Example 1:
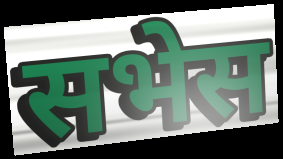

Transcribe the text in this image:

सभेस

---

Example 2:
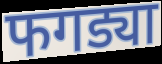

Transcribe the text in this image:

फगड्या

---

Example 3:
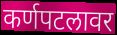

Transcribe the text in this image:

कर्णपटलावर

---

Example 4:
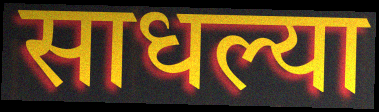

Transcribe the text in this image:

साधल्या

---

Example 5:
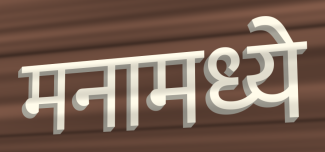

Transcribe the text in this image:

मनामध्ये